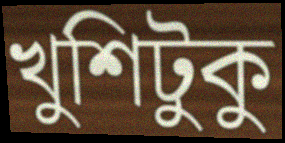
খুশিটুকু